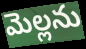
మెల్లను